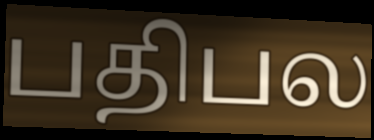
பதிபல